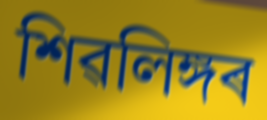
শিৱলিঙ্গৰ